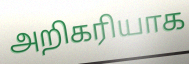
அறிகரியாக